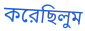
করেছিলুম